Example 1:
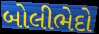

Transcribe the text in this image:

બોલીભેદો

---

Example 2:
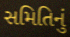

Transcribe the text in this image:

સમિતિનું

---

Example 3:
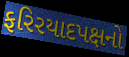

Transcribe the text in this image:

ફરિરયાદપક્ષનો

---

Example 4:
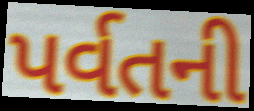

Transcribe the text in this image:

પર્વતની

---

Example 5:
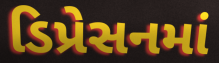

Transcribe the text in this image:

ડિપ્રેસનમાં